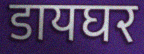
डायघर